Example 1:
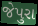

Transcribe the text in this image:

જેપુરા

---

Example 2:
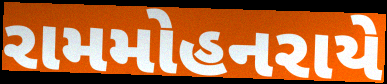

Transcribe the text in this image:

રામમોહનરાયે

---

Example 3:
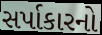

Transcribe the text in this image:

સર્પાકારનો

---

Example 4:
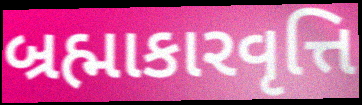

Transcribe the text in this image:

બ્રહ્માકારવૃત્તિ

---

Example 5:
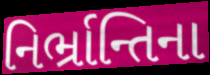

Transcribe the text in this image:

નિર્ભ્રાન્તિના